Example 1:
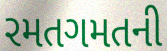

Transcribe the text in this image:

રમતગમતની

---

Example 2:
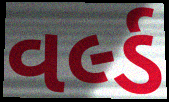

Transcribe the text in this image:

વર્લ્ડ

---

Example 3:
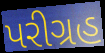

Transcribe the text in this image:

પરીગ્રહ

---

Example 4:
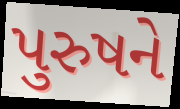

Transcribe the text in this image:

પુરુષને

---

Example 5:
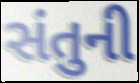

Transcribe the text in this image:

સંતુની